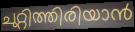
ചുറ്റിത്തിരിയാൻ